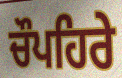
ਚੌਪਹਿਰੇ